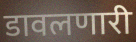
डावलणारी